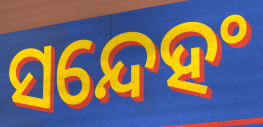
ସନ୍ଦେହଂ